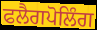
ਫਲੈਗਪੋਲਿੰਗ